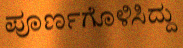
ಪೂರ್ಣಗೊಳಿಸಿದ್ದು